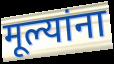
मूल्यांना